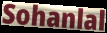
Sohanlal